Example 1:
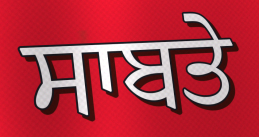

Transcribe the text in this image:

ਸਾਬਤੇ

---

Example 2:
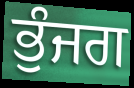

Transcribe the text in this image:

ਭੁੰਜਗ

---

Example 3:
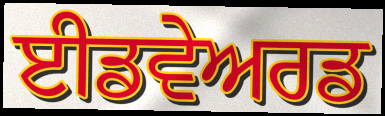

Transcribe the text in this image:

ਈਡਵੇਅਰਡ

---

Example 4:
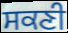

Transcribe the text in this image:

ਸਕਣੀ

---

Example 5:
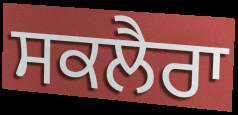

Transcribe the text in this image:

ਸਕਲੈਰਾ